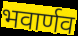
भवार्णव